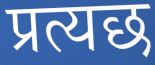
प्रत्यछ